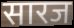
सारज